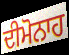
ਦੀਮੋਨਾਹ